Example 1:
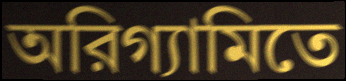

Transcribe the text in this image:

অরিগ্যামিতে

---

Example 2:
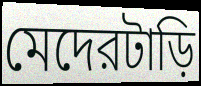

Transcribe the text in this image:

মেদেরটাড়ি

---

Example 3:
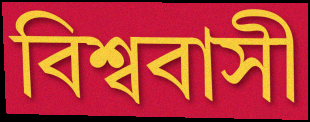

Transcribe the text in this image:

বিশ্ববাসী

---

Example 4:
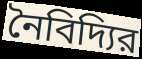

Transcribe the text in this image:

নৈবিদ্যির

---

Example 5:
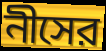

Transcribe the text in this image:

নীসের